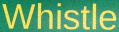
Whistle